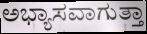
ಅಭ್ಯಾಸವಾಗುತ್ತಾ